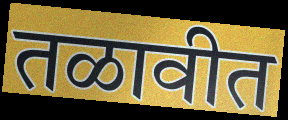
तळावीत